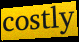
costly